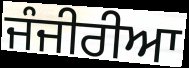
ਜੰਜੀਰੀਆ